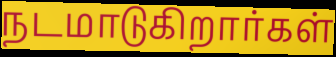
நடமாடுகிறார்கள்